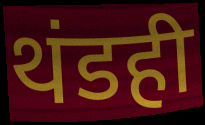
थंडही